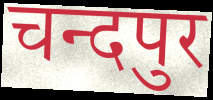
चन्दपुर